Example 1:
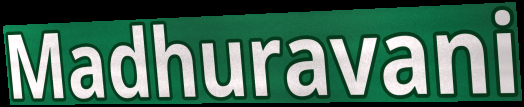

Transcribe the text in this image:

Madhuravani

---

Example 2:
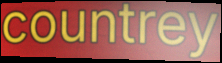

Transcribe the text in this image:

countrey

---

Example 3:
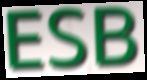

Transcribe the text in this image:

ESB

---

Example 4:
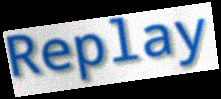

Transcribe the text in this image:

Replay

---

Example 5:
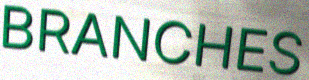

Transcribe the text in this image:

BRANCHES